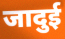
जादुई